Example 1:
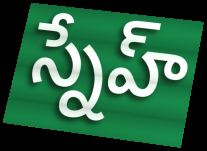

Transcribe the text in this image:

స్నేహ్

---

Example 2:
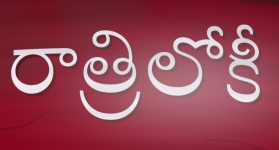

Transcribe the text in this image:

రాత్రిలోకీ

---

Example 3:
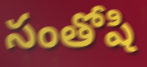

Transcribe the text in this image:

సంతోషి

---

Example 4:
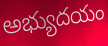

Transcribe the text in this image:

అభ్యుదయం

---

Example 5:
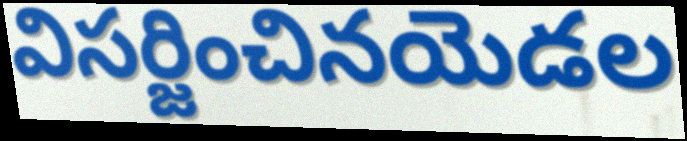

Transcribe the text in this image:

విసర్జించినయెడల